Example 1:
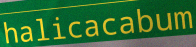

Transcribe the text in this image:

halicacabum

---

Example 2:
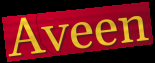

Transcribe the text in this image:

Aveen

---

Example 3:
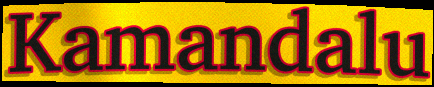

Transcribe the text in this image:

Kamandalu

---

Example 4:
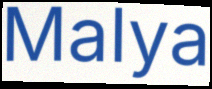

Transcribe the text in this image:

Malya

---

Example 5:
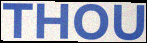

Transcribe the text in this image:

THOU